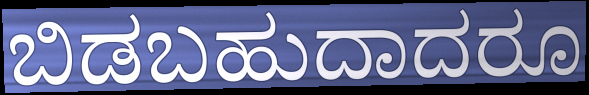
ಬಿಡಬಹುದಾದರೂ